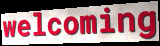
welcoming